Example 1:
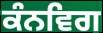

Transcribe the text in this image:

ਕੰਨਵਿਗ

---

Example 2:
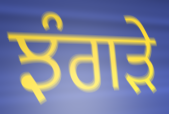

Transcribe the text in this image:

ਝੰਗੜੇ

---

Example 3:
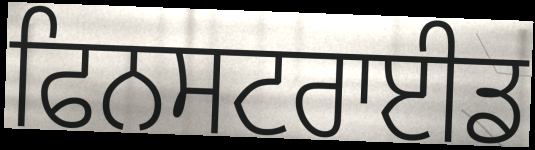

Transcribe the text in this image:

ਫਿਨਸਟਰਾਈਡ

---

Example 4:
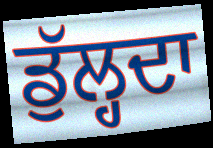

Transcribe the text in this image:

ਡੁੱਲ੍ਹਦਾ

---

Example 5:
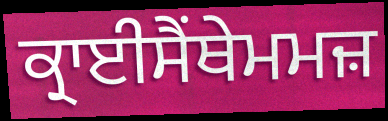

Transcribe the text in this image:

ਕ੍ਰਾਈਸੈਂਥੇਮਮਜ਼